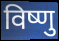
विष्‍णु